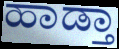
ಹಾಡ್ತಾ